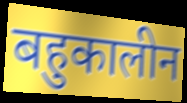
बहुकालीन